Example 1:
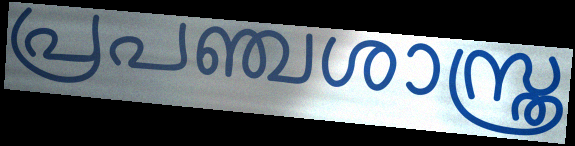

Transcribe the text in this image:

പ്രപഞ്ചശാസ്ത്ര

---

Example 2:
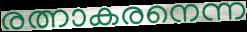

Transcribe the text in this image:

രത്നാകരനെന്ന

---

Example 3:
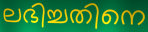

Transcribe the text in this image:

ലഭിച്ചതിനെ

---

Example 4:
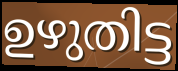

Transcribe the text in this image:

ഉഴുതിട്ട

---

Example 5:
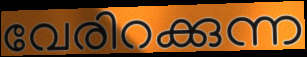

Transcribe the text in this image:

വേരിറക്കുന്ന